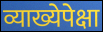
व्याख्येपेक्षा